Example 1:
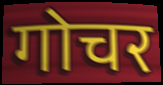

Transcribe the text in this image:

गोचर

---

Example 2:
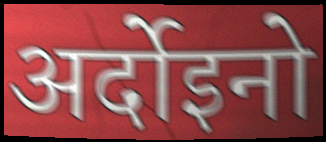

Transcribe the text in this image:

अर्दोइनो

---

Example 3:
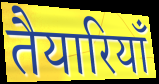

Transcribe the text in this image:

तैयारियॉं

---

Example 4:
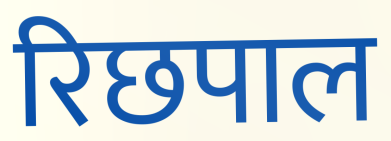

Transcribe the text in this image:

रिछपाल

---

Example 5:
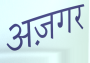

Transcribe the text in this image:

अज़गर